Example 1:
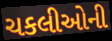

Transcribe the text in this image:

ચકલીઓની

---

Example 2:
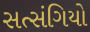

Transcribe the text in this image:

સત્સંગિયો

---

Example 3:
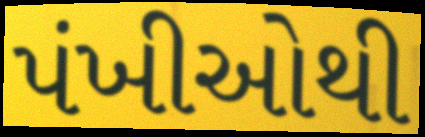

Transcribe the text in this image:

પંખીઓથી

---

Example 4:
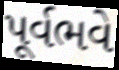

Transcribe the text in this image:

પૂર્વભવે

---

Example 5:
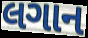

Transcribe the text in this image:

લગાન